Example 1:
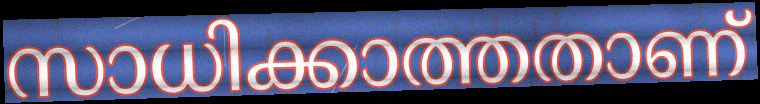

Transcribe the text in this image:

സാധിക്കാത്തതാണ്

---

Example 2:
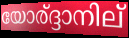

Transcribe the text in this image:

യോര്ദ്ദാനില്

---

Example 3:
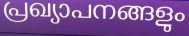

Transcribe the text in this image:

പ്രഖ്യാപനങ്ങളും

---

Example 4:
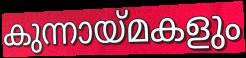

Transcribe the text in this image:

കുന്നായ്മകളും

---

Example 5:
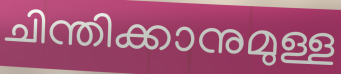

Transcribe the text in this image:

ചിന്തിക്കാനുമുള്ള